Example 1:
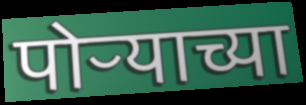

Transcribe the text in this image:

पोऱ्याच्या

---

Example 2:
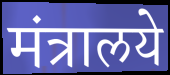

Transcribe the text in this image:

मंत्रालये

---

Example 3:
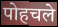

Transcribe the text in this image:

पोहचले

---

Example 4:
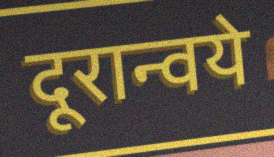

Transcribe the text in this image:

दूरान्वये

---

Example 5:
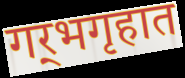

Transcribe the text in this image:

गर्भगृहात